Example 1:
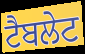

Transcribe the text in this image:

ਟੈਬਲੇਟ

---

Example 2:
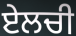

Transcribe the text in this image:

ਏਲਚੀ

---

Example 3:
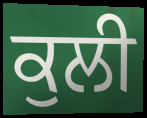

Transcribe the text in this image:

ਕੁਲੀ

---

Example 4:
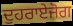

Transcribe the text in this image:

ਦੁਹਰਾਏਜੋਗ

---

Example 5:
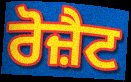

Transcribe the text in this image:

ਰੋਜ਼ੈਟ